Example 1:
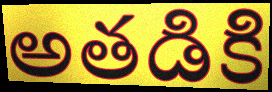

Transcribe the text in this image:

అతడికి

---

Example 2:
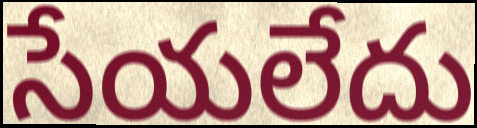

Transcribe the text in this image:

సేయలేదు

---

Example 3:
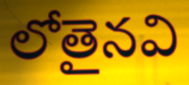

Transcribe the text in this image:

లోతైనవి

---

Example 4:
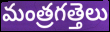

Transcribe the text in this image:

మంత్రగత్తెలు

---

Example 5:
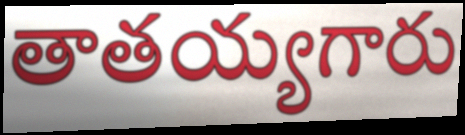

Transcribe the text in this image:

తాతయ్యగారు